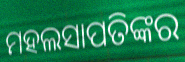
ମହଲସାପତିଙ୍କର